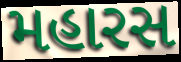
મહારસ